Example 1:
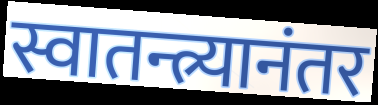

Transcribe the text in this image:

स्वातन्त्र्यानंतर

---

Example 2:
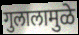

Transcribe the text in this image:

गुलालामुळे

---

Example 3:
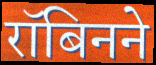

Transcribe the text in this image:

रॉबिनने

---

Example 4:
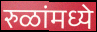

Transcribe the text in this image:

रुळांमध्ये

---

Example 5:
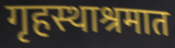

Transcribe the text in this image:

गृहस्थाश्रमात